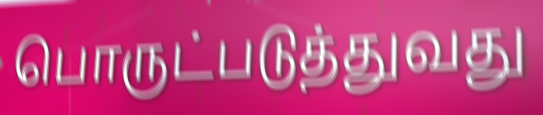
பொருட்படுத்துவது